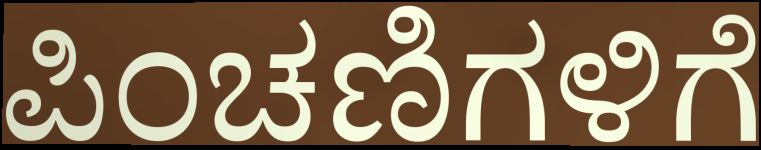
ಪಿಂಚಣಿಗಳಿಗೆ